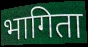
भागिता